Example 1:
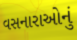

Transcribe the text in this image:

વસનારાઓનું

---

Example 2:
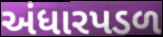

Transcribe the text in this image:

અંધારપડળ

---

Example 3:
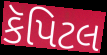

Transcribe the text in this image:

કૅપિટલ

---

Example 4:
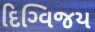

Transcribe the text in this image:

દિગ્વિજય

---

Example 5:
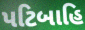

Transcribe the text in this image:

પટિબાહિ